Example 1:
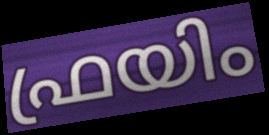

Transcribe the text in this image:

ഫ്രയിം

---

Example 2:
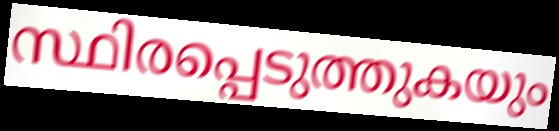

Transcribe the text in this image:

സ്ഥിരപ്പെടുത്തുകയും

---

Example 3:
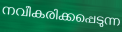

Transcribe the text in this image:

നവീകരിക്കപ്പെടുന്ന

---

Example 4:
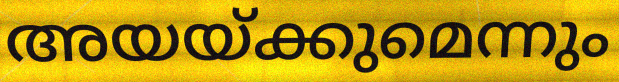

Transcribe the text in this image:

അയയ്ക്കുമെന്നും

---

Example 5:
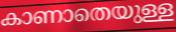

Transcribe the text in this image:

കാണാതെയുള്ള